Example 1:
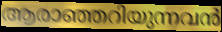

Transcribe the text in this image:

ആരാഞ്ഞറിയുന്നവൻ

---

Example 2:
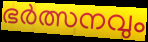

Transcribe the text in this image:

ഭർത്സനവും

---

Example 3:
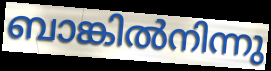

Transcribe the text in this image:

ബാങ്കിൽനിന്നു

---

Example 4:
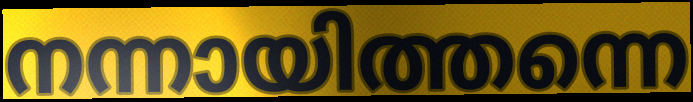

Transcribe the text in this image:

നന്നായിത്തന്നെ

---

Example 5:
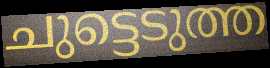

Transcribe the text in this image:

ചുട്ടെടുത്ത